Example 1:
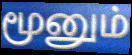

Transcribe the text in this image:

மூனும்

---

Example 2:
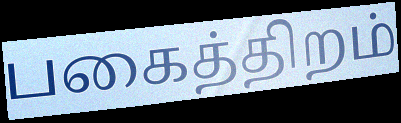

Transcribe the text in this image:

பகைத்திறம்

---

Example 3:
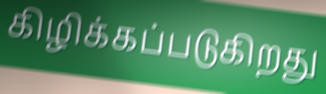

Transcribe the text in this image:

கிழிக்கப்படுகிறது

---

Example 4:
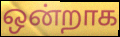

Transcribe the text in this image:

ஒன்றாக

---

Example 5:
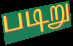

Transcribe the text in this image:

படிறு